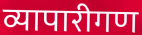
व्यापारीगण